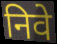
निवे